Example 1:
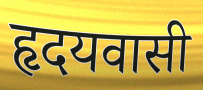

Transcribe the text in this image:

हृदयवासी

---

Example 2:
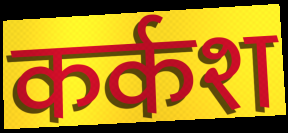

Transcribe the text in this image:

कर्कश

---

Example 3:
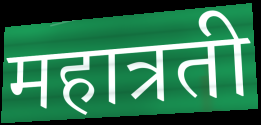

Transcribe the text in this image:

महात्रती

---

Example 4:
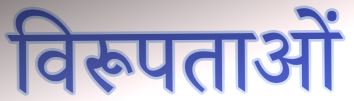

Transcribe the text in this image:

विरूपताओं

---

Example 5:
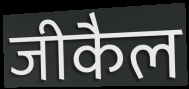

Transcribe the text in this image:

जीकैल